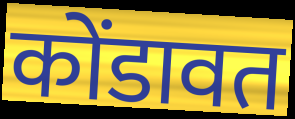
कोंडावत